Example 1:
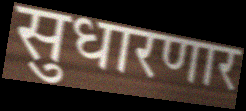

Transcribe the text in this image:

सुधारणार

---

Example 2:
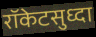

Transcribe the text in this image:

रॉकेटसुध्दा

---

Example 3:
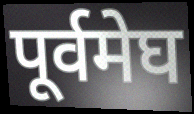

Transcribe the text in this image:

पूर्वमेघ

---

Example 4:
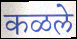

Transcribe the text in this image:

कळले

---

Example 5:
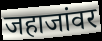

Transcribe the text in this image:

जहाजांवर